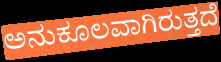
ಅನುಕೂಲವಾಗಿರುತ್ತದೆ